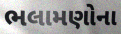
ભલામણોના